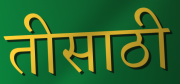
तीसाठी